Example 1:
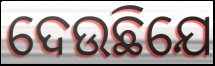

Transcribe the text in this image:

ଦେଉଛିଯେ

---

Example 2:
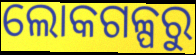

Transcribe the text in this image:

ଲୋକଗଳ୍ପରୁ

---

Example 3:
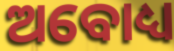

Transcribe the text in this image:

ଅବୋଧ୍ୟ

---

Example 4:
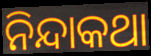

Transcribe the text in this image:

ନିନ୍ଦାକଥା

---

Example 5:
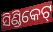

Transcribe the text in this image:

ସିଣ୍ଡିକେଟ୍